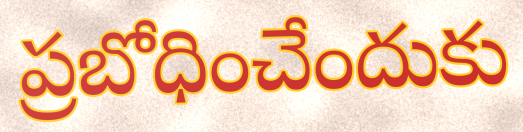
ప్రబోధించేందుకు